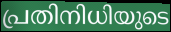
പ്രതിനിധിയുടെ